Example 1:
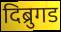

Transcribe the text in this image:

दिब्रुगड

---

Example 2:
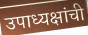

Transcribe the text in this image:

उपाध्यक्षांची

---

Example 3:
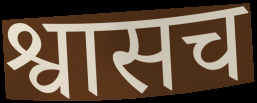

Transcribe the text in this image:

श्वासच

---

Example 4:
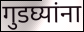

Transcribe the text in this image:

गुडघ्यांना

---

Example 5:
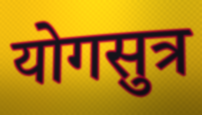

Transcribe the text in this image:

योगसुत्र